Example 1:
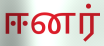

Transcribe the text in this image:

ஈனர்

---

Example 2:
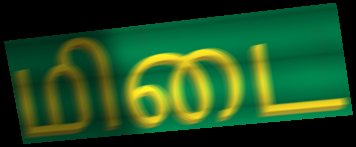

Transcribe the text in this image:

மிடை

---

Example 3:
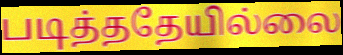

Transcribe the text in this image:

படித்ததேயில்லை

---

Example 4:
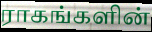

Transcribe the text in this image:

ராகங்களின்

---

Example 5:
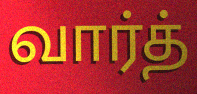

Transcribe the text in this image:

வார்த்